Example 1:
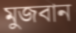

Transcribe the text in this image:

মুজবান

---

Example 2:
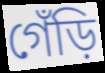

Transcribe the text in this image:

গেঁড়ি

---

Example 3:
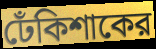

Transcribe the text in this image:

ঢেঁকিশাকের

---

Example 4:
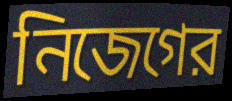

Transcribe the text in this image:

নিজেগের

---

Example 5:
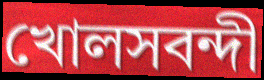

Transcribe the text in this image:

খোলসবন্দী